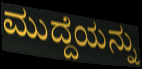
ಮುದ್ದೆಯನ್ನು